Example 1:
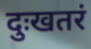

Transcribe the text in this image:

दुःखतरं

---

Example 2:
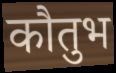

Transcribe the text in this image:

कौतुभ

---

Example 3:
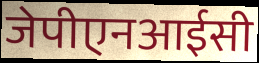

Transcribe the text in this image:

जेपीएनआईसी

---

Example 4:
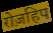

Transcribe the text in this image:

रोज़हिप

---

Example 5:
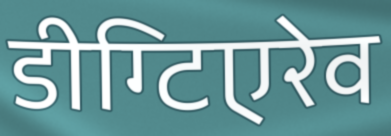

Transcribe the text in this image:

डीग्टिएरेव